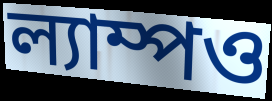
ল্যাম্পও